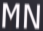
MN